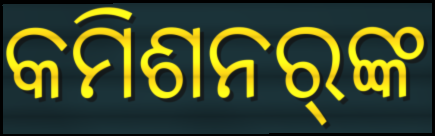
କମିଶନର୍‌ଙ୍କ